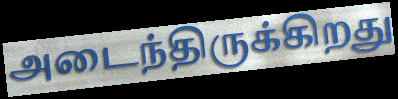
அடைந்திருக்கிறது